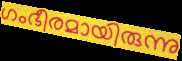
ഗംഭീരമായിരുന്നു